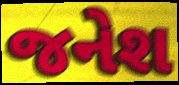
જનેશ